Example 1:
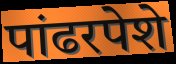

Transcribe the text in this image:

पांढरपेशे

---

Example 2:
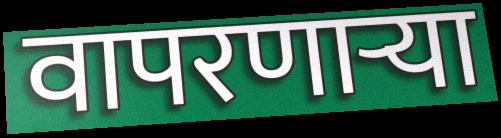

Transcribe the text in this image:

वापरणार्‍या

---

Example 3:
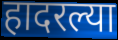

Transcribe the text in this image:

हादरल्या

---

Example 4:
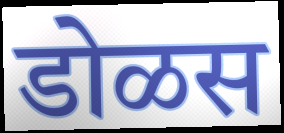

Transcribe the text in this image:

डोळस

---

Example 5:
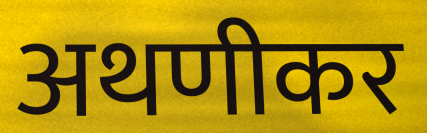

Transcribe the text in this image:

अथणीकर